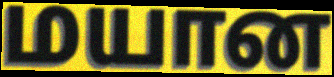
மயான